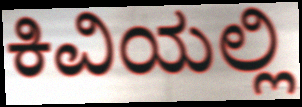
ಕಿವಿಯಲ್ಲಿ